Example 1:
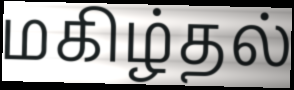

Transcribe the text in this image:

மகிழ்தல்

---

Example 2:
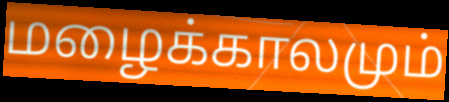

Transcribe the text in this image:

மழைக்காலமும்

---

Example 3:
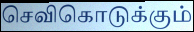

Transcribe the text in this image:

செவிகொடுக்கும்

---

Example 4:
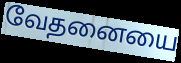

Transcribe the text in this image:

வேதனையை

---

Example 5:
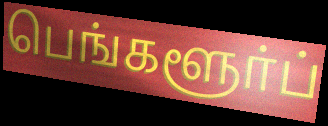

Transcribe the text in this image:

பெங்களூர்ப்